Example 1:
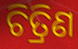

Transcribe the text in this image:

ଚିତ୍ରିଣ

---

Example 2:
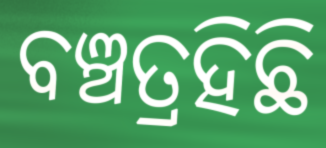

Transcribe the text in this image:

ବଞ୍ଚତ୍ରହିଛି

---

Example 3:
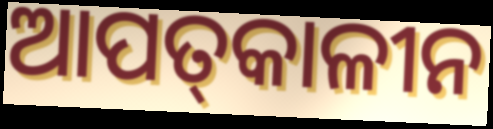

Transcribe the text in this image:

ଆପତ୍‌କାଳୀନ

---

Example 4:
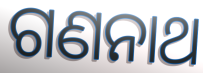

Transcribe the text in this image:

ଗଣନାଥ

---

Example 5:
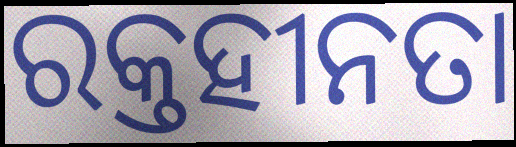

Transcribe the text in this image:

ରକ୍ତହୀନତା